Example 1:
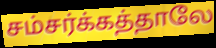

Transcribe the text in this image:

சம்சர்க்கத்தாலே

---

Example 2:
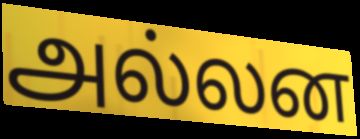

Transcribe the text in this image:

அல்லன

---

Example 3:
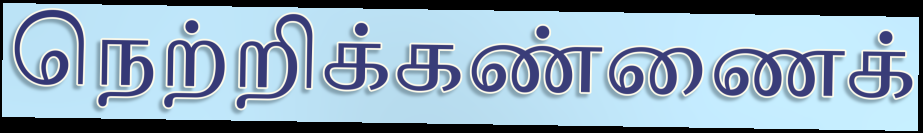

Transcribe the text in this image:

நெற்றிக்கண்ணைக்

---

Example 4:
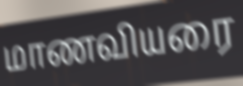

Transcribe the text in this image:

மாணவியரை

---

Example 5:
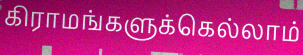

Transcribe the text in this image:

கிராமங்களுக்கெல்லாம்